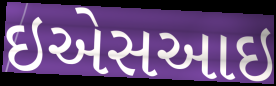
ઇએસઆઇ